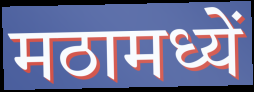
मठामध्यें